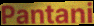
Pantani